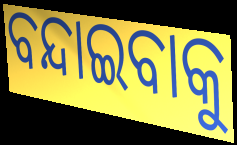
ବନ୍ଦାଇବାକୁ